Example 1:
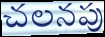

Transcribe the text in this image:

చలనపు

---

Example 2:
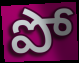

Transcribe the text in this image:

పో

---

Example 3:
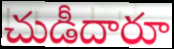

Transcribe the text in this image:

చుడీదారూ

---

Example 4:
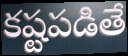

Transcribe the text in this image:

కష్టపడితే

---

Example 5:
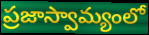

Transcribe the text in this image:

ప్రజాస్వామ్యంలో